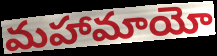
మహామాయో